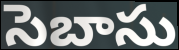
సెబాసు